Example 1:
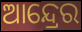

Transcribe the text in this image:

ଆନ୍ଦ୍ରେର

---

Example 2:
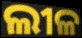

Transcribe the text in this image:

ଲୀଳ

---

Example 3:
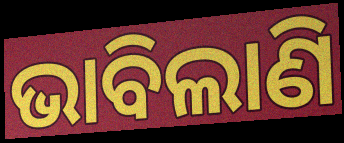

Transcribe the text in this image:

ଭାବିଲାଣି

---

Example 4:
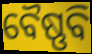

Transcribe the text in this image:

ବୈଷ୍ଣବି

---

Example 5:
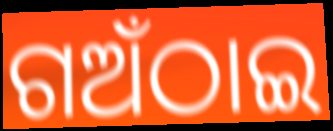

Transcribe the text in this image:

ଗଅଁଠାଇ